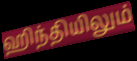
ஹிந்தியிலும்